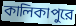
কালিকাপুরে